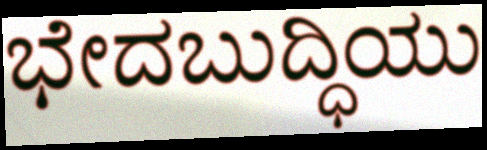
ಭೇದಬುದ್ಧಿಯು